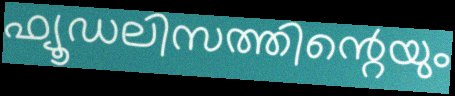
ഫ്യൂഡലിസത്തിന്റെയും